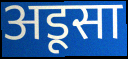
अडूसा